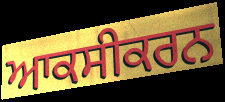
ਆਕਸੀਕਰਨ